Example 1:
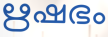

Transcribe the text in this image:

ഋഷഭം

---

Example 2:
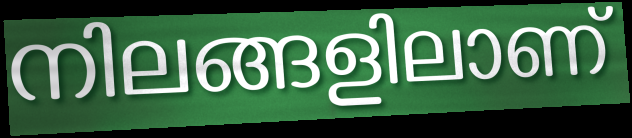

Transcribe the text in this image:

നിലങ്ങളിലാണ്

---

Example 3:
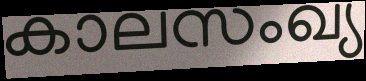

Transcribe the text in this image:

കാലസംഖ്യ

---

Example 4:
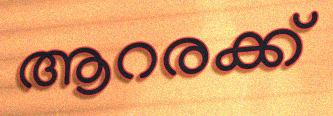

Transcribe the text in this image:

ആറരക്ക്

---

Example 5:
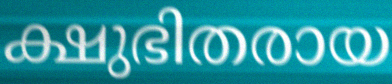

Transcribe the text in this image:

ക്ഷുഭിതരായ